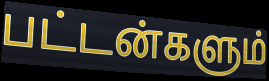
பட்டன்களும்